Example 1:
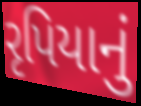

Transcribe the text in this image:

રૃપિયાનું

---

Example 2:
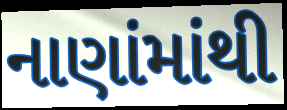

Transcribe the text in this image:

નાણાંમાંથી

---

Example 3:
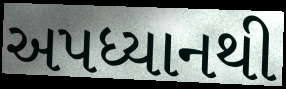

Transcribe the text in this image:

અપધ્યાનથી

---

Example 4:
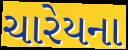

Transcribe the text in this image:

ચારેયના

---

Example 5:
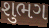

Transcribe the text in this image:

શુભગ